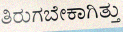
ತಿರುಗಬೇಕಾಗಿತ್ತು